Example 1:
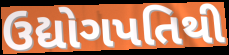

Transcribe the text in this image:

ઉદ્યોગપતિથી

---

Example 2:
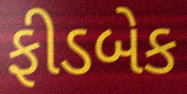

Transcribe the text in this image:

ફીડબેક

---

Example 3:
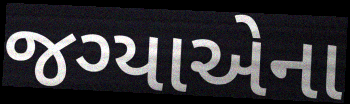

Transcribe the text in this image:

જગ્યાએના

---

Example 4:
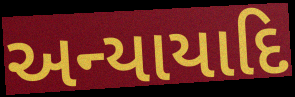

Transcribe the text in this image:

અન્યાયાદિ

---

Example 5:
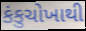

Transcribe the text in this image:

કંકુચોખાથી